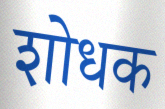
शोधक